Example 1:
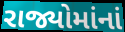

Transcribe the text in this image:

રાજ્યોમાંનાં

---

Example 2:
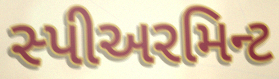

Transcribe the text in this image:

સ્પીઅરમિન્ટ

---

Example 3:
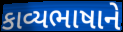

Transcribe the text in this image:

કાવ્યભાષાને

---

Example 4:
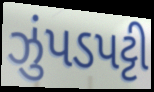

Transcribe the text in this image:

ઝુંપડપટ્ટી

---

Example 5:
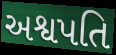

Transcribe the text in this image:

અશ્વપતિ